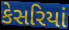
કેસરિયાં